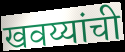
खवय्यांची